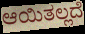
ಆಯಿತಲ್ಲದೆ